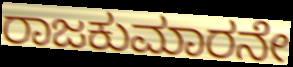
ರಾಜಕುಮಾರನೇ